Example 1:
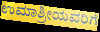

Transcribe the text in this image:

ಉಮಾಶ್ರೀಯವರಿಗೆ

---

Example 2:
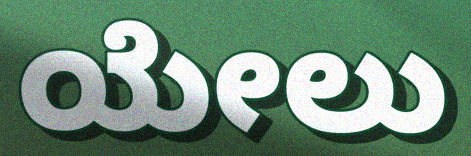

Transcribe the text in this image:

ಯೇಲು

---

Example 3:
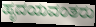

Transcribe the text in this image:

ಹೃದಯವಂತರು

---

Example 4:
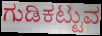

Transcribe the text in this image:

ಗುಡಿಕಟ್ಟುವ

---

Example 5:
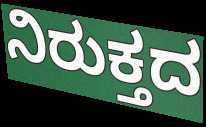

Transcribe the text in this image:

ನಿರುಕ್ತದ